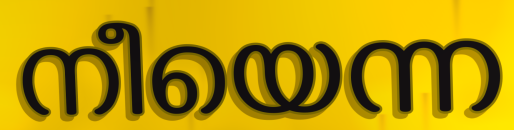
നീയെന്ന